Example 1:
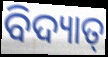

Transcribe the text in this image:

ବିଦ୍ୟାତ୍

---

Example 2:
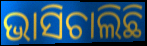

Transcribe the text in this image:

ଭାସିଚାଲିଛି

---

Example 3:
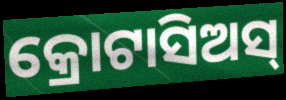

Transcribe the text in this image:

କ୍ରୋଟାସିଅସ୍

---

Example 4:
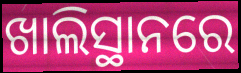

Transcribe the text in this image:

ଖାଲିସ୍ଥାନରେ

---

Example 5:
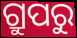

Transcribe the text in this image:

ଗ୍ରୁପରୁ